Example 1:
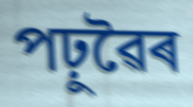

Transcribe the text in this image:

পঢ়ুৱৈৰ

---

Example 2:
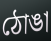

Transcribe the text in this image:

ঠোঙা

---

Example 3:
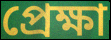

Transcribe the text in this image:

প্ৰেক্ষা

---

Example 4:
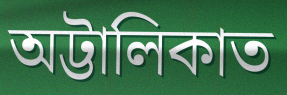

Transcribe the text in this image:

অট্টালিকাত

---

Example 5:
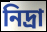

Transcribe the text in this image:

নিদ্ৰা